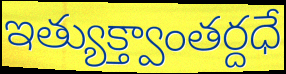
ఇత్యుక్త్వాంతర్దధే